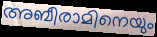
അബീരാമിനെയും